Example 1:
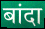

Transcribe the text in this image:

बांदा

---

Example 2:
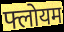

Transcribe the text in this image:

फ्लोयम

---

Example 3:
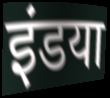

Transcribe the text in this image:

इंडया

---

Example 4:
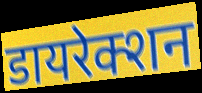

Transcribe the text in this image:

डायरेक्शन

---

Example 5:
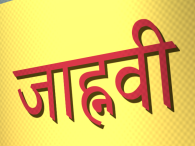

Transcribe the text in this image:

जाह्नवी